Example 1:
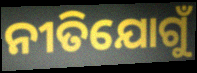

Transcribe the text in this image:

ନୀତିଯୋଗୁଁ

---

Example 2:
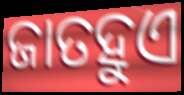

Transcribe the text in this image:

ଜାତହୁଏ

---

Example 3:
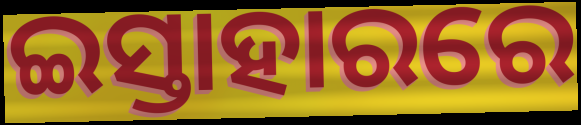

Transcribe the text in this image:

ଇସ୍ତାହାରରେ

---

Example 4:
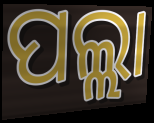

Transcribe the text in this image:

ପଲ୍ଲା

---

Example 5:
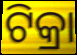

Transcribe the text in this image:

ଟିକ୍ରା